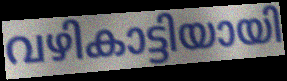
വഴികാട്ടിയായി